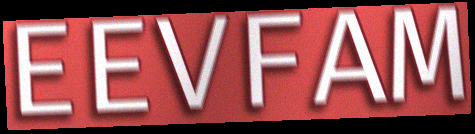
EEVFAM